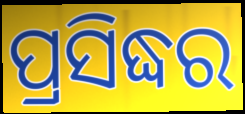
ପ୍ରସିଦ୍ଧର